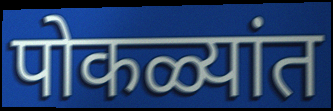
पोकळ्यांत